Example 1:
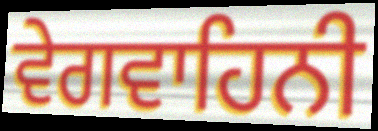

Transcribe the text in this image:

ਵੇਗਵਾਹਿਨੀ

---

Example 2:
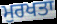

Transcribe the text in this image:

ਮੁਰਖਤਾ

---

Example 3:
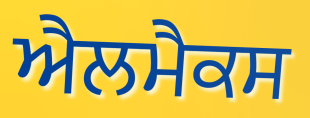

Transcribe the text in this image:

ਐਲਮੈਕਸ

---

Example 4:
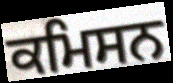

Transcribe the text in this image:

ਕਮਿਸਨ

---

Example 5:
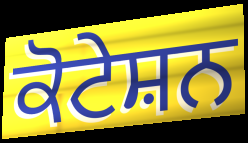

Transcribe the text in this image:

ਕੋਟੇਸ਼ਨ